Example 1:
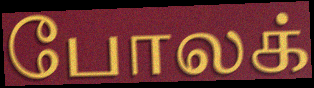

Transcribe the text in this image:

போலக்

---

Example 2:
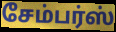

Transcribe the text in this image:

சேம்பர்ஸ்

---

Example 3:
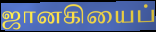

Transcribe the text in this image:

ஜானகியைப்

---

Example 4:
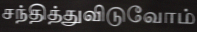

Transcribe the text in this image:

சந்தித்துவிடுவோம்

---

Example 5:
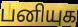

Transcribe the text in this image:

பனியுக